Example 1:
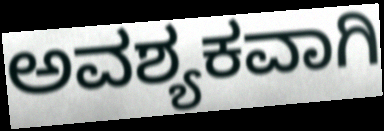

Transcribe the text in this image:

ಅವಶ್ಯಕವಾಗಿ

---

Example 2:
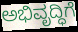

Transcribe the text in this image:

ಅಭಿವೃದ್ಧಿಗೆ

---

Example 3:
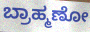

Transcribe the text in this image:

ಬ್ರಾಹ್ಮಣೋ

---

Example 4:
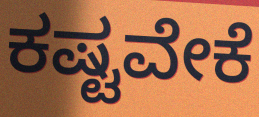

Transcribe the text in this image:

ಕಷ್ಟವೇಕೆ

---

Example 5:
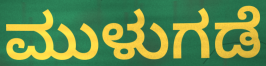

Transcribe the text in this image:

ಮುಳುಗಡೆ